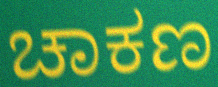
ಚಾಕಣ